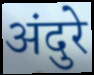
अंदुरे